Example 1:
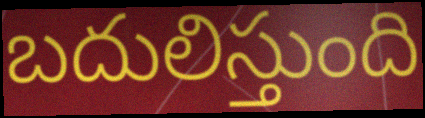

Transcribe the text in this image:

బదులిస్తుంది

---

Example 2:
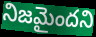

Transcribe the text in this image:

నిజమైందని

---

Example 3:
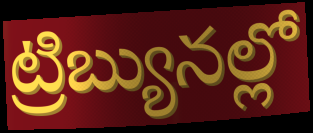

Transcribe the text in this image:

ట్రిబ్యునల్లో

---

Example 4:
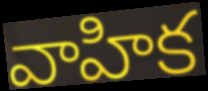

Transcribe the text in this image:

వాహిక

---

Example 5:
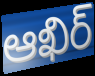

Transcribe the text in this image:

ఆఖిర్